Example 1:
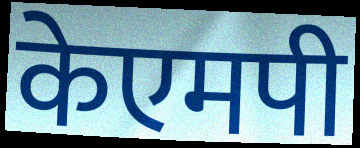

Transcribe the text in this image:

केएमपी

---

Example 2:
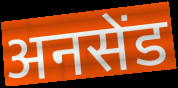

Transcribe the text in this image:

अनसेंड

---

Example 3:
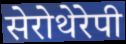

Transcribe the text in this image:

सेरोथेरेपी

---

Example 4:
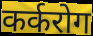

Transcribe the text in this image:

कर्करोग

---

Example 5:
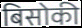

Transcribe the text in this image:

बिसोकी